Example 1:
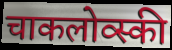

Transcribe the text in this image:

चाकलोव्स्की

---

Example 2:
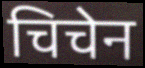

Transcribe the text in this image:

चिचेन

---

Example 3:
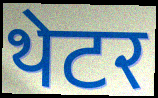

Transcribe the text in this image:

थेटर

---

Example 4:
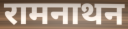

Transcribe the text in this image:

रामनाथन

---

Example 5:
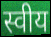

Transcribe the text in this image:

स्वीय